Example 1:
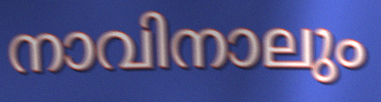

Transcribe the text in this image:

നാവിനാലും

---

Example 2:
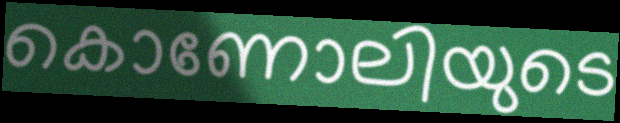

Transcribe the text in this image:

കൊണോലിയുടെ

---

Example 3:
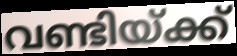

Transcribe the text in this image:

വണ്ടിയ്ക്ക്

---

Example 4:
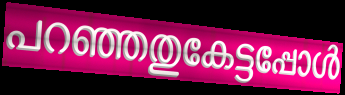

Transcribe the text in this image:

പറഞ്ഞതുകേട്ടപ്പോൾ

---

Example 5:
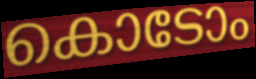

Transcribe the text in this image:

കൊടോം